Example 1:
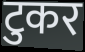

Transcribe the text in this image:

टुकर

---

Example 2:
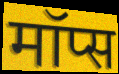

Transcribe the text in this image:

मॉप्स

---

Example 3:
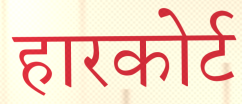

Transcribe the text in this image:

हारकोर्ट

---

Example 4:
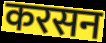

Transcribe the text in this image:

करसन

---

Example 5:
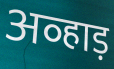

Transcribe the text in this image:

अव्हाड़